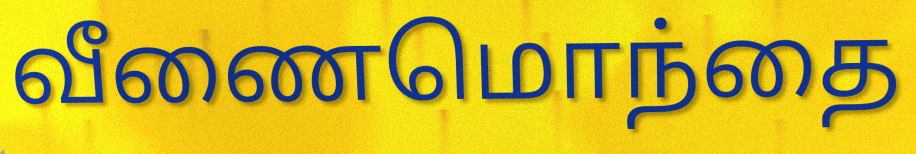
வீணைமொந்தை